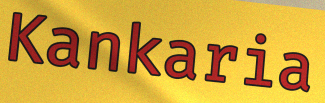
Kankaria